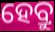
ହେବ୍ରୁ